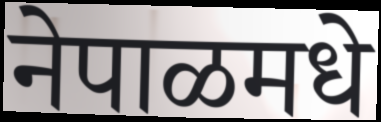
नेपाळमधे